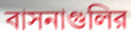
বাসনাগুলির